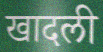
खादली